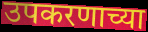
उपकरणाच्या